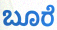
ಬೂರೆ